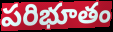
పరిభూతం